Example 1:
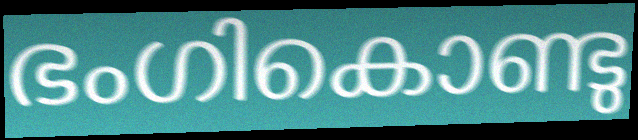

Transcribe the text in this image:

ഭംഗികൊണ്ടു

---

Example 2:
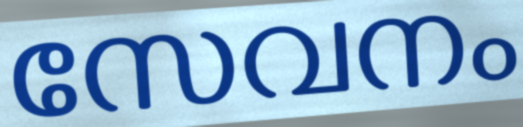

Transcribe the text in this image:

സേവനം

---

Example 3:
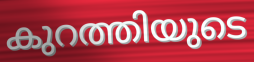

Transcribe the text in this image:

കുറത്തിയുടെ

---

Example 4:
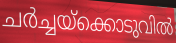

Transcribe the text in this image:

ചർച്ചയ്ക്കൊടുവിൽ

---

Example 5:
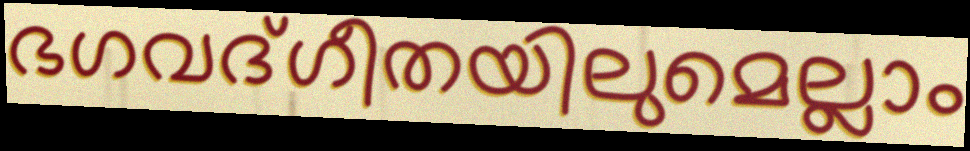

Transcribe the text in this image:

ഭഗവദ്ഗീതയിലുമെല്ലാം